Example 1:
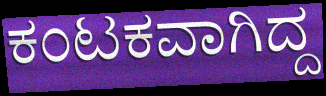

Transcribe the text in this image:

ಕಂಟಕವಾಗಿದ್ದ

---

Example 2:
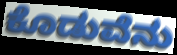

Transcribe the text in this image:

ಕೊಡುವೆನು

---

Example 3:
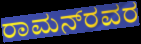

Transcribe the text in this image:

ರಾಮನ್‌ರವರ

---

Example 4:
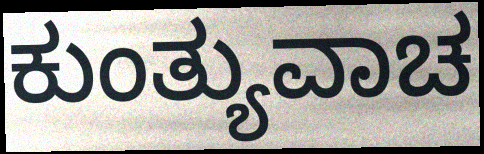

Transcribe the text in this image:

ಕುಂತ್ಯುವಾಚ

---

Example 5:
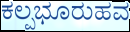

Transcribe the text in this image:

ಕಲ್ಪಭೂರುಹವ